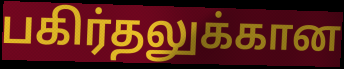
பகிர்தலுக்கான